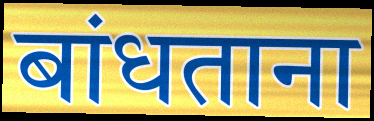
बांधताना